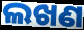
ଲଖଣ